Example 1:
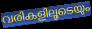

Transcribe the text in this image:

വരികളിലൂടെയും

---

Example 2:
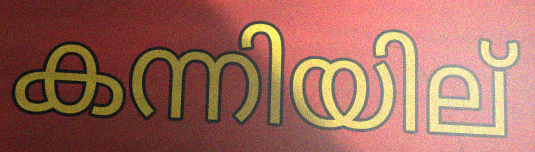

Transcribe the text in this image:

കന്നിയില്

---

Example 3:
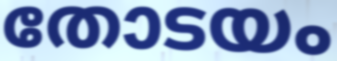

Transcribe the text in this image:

തോടയം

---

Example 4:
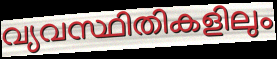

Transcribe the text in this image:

വ്യവസ്ഥിതികളിലും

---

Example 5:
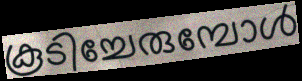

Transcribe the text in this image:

കൂടിച്ചേരുമ്പോൾ